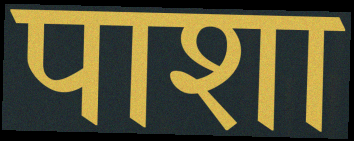
पाशा